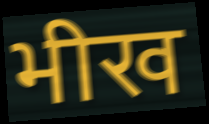
भीख